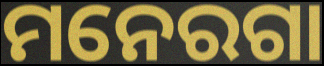
ମନେରଗା